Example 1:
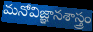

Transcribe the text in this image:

మనోవిజ్ఞానశాస్త్రం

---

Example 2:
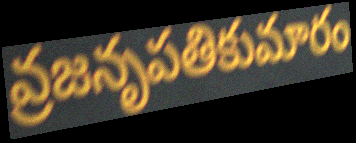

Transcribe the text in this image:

వ్రజనృపతికుమారం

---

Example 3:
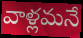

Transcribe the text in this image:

వాళ్లమనే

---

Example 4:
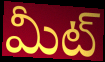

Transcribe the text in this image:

మీట్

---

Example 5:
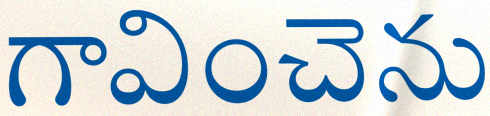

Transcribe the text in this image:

గావించెను